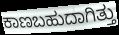
ಕಾಣಬಹುದಾಗಿತ್ತು